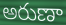
అరుణా